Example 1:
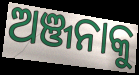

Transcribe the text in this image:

ଅଞ୍ଜନାକୁ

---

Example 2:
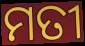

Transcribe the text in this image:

ମତୀ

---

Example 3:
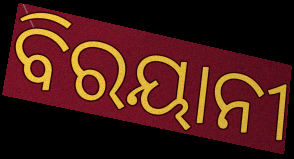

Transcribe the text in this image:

ବିରୟାନୀ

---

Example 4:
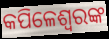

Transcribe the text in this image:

କପିଳେଶ୍ବରଙ୍କ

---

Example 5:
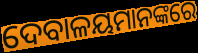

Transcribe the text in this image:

ଦେବାଳୟମାନଙ୍କରେ